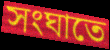
সংঘাতে